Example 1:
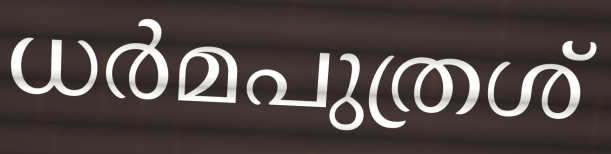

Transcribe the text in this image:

ധർമപുത്രശ്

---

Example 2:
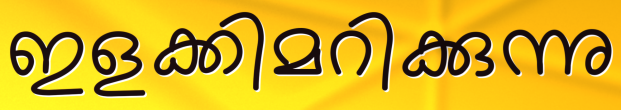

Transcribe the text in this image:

ഇളക്കിമറിക്കുന്നു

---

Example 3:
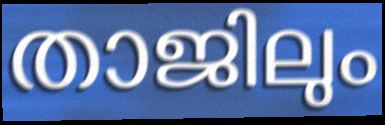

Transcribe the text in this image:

താജിലും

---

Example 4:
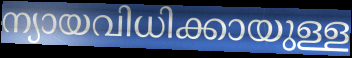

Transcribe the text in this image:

ന്യായവിധിക്കായുള്ള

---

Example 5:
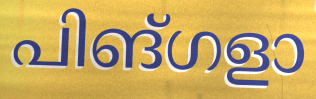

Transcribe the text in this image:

പിങ്ഗളാ